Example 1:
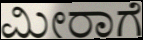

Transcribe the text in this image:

ಮೀರಾಗೆ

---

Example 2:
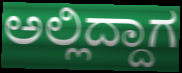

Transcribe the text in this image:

ಅಲ್ಲಿದ್ದಾಗ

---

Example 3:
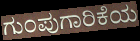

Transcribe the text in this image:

ಗುಂಪುಗಾರಿಕೆಯ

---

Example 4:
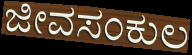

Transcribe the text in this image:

ಜೀವಸಂಕುಲ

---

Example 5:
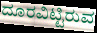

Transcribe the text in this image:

ದೂರವಿಟ್ಟಿರುವ